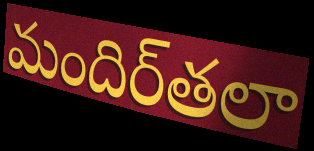
మందిర్‌తలా